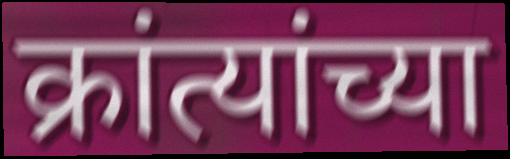
क्रांत्यांच्या